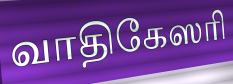
வாதிகேஸரி